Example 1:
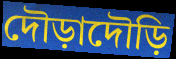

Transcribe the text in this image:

দৌড়াদৌড়ি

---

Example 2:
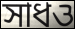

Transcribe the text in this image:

সাধও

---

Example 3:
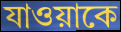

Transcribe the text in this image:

যাওয়াকে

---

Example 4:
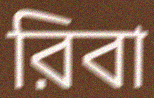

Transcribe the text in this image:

রিবা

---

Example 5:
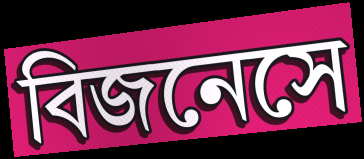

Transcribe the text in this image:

বিজনেসে